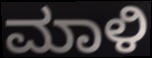
ಮಾಳಿ